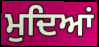
ਮੁਦਿਆਂ